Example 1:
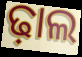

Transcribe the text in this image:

ଢ଼ାଲ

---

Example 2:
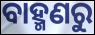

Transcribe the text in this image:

ବାହ୍ମଣରୁ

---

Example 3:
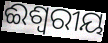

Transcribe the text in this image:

ଈଶ୍ବରୀୟ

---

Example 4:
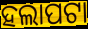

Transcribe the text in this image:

ହଲାପଟା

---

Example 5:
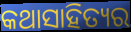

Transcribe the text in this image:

କଥାସାହିତ୍ୟର